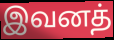
இவனத்